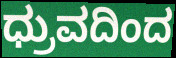
ಧ್ರುವದಿಂದ